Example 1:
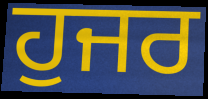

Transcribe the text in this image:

ਹੁਜਰ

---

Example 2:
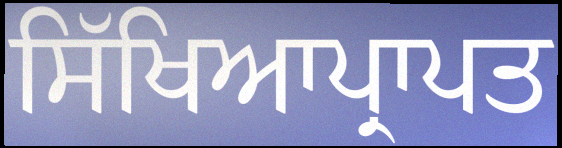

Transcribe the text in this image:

ਸਿੱਖਿਆਪ੍ਰਾਪਤ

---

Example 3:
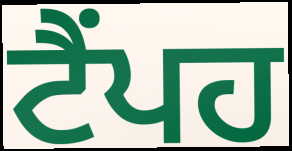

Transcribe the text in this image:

ਟੈਂਪਹ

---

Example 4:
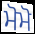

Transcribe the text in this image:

ਮੋਮੋ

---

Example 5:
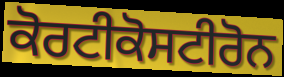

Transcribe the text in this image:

ਕੋਰਟੀਕੋਸਟੀਰੋਨ